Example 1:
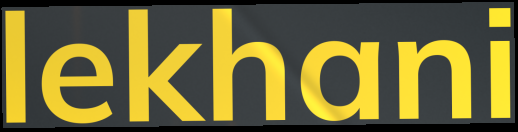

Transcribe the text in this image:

lekhani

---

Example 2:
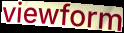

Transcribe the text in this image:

viewform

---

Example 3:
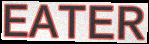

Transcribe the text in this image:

EATER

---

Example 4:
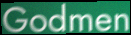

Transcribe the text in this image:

Godmen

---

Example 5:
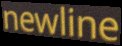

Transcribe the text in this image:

newline